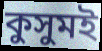
কুসুমই